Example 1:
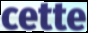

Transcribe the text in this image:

cette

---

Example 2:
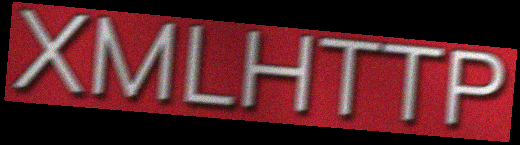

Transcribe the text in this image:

XMLHTTP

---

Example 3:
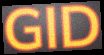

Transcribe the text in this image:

GID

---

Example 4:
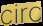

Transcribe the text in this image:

circ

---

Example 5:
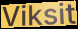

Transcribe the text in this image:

Viksit